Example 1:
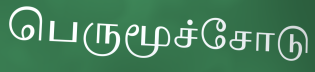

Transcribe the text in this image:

பெருமூச்சோடு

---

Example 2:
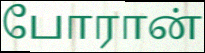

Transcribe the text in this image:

போரான்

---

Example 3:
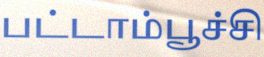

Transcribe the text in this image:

பட்டாம்பூச்சி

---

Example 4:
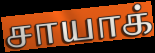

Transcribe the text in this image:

சாயாக்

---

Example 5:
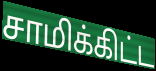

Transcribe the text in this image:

சாமிக்கிட்ட